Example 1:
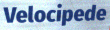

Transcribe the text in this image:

Velocipede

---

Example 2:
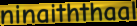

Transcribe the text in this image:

ninaiththaal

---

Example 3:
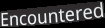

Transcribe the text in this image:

Encountered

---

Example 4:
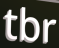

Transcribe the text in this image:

tbr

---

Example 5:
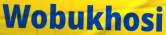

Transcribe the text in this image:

Wobukhosi